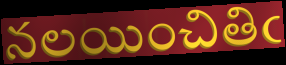
నలయించితిఁ